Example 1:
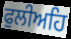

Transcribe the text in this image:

ਫੁਲੀਅਹਿ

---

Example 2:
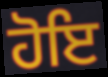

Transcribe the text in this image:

ਹੋਇ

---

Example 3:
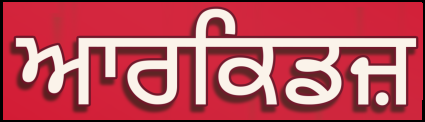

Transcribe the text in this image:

ਆਰਕਿਡਜ਼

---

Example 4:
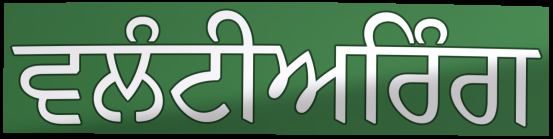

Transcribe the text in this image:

ਵਲੰਟੀਅਰਿੰਗ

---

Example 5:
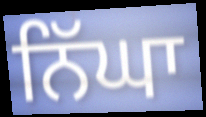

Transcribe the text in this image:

ਨਿੱਘਾ